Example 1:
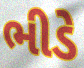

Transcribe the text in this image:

ભીડે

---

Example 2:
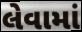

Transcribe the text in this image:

લેવામાં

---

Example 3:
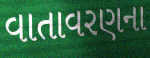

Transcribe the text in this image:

વાતાવરણના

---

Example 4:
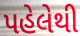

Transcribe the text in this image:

પહેલેથી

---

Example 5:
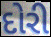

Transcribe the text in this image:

દોરી